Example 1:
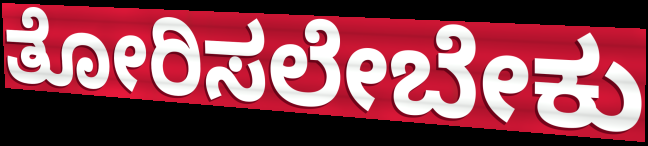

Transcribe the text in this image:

ತೋರಿಸಲೇಬೇಕು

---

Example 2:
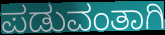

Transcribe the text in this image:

ಪಡುವಂತಾಗಿ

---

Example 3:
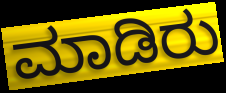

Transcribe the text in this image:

ಮಾಡಿರು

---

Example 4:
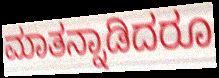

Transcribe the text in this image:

ಮಾತನ್ನಾಡಿದರೂ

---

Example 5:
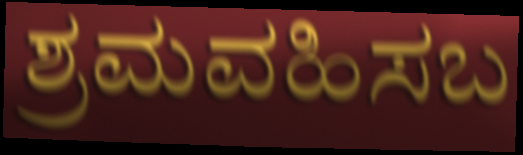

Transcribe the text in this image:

ಶ್ರಮವಹಿಸಬ